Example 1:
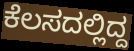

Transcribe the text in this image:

ಕೆಲಸದಲ್ಲಿದ್ದ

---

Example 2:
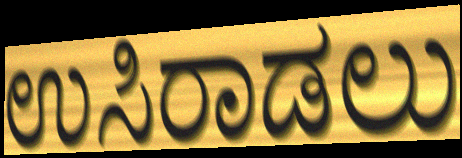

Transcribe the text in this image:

ಉಸಿರಾಡಲು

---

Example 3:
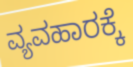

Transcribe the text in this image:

ವ್ಯವಹಾರಕ್ಕೆ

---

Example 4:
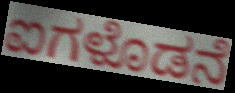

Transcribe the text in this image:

ಐಗಳೊಡನೆ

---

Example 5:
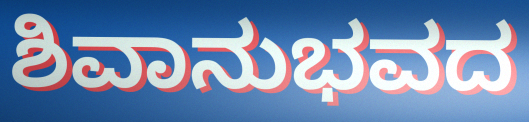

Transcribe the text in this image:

ಶಿವಾನುಭವದ